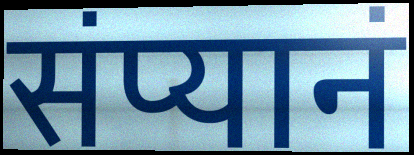
संप्यानं